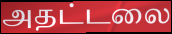
அதட்டலை